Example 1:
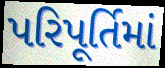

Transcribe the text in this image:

પરિપૂર્તિમાં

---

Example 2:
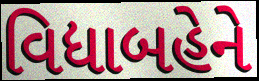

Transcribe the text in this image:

વિદ્યાબહેને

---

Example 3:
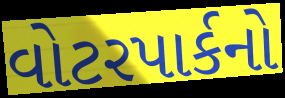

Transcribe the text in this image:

વોટરપાર્કનો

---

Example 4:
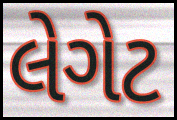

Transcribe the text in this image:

લેગેટ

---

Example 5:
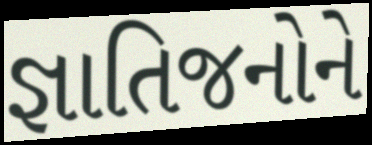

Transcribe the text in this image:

જ્ઞાતિજનોને